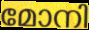
മോനി